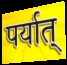
पर्यात्